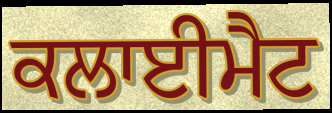
ਕਲਾਈਮੈਟ